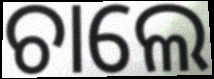
ଚାଲେ